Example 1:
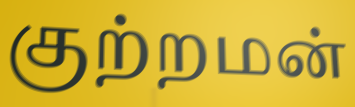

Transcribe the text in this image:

குற்றமன்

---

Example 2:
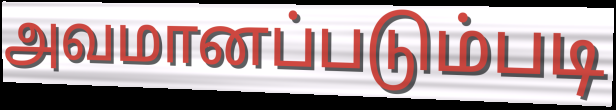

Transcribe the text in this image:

அவமானப்படும்படி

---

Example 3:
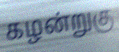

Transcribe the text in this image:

கழன்றுகு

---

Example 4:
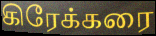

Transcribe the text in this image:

கிரேக்கரை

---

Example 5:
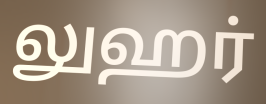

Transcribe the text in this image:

லுஹர்